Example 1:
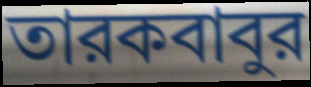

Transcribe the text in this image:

তারকবাবুর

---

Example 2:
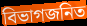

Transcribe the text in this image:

বিভাগজনিত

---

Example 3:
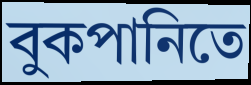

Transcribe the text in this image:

বুকপানিতে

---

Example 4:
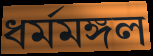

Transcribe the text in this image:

ধর্মমঙ্গল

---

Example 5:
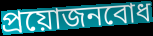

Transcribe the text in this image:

প্রয়োজনবোধ